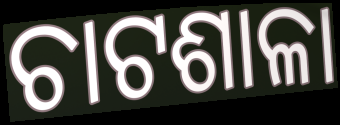
ଚାଟଶାଳା